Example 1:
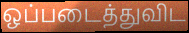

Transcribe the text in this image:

ஒப்படைத்துவிட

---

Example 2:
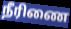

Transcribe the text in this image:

நீரிணை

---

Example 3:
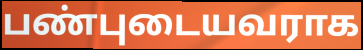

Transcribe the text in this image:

பண்புடையவராக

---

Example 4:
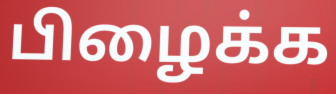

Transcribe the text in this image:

பிழைக்க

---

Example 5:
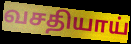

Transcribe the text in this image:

வசதியாய்